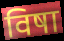
विषा